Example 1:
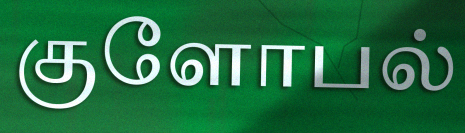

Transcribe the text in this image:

குளோபல்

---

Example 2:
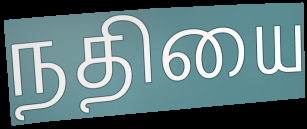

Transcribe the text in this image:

நதியை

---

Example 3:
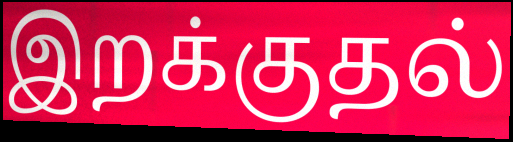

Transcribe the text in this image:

இறக்குதல்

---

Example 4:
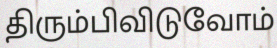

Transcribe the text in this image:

திரும்பிவிடுவோம்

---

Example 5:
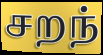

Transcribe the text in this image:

சறந்